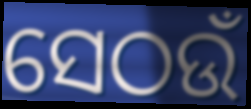
ସେଠଉଁ